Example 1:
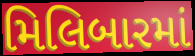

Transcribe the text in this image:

મિલિબારમાં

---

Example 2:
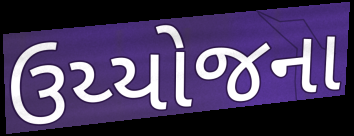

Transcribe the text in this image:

ઉય્યોજના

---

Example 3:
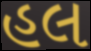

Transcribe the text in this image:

હલ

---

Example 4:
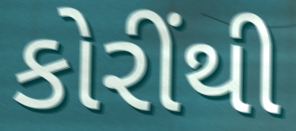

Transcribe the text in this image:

કોરીંથી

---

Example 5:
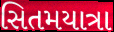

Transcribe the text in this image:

સિતમયાત્રા